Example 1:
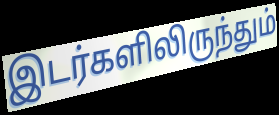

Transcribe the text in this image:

இடர்களிலிருந்தும்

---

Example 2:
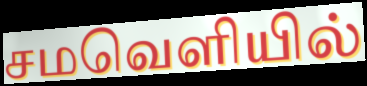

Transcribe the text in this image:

சமவெளியில்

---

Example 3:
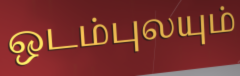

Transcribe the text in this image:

ஒடம்புலயும்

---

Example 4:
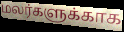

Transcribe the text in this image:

மலர்களுக்காக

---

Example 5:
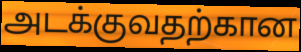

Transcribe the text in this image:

அடக்குவதற்கான